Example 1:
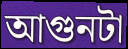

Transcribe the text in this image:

আগুনটা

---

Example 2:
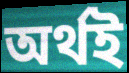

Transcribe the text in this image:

অর্থই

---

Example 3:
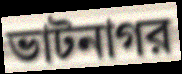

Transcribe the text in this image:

ভাটনাগর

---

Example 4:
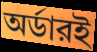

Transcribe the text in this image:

অর্ডারই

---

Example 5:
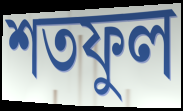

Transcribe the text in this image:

শতফুল